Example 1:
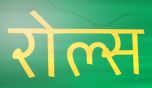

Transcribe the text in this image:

रोल्स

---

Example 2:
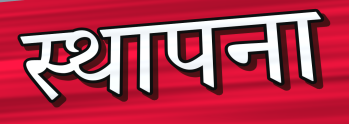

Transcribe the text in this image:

स्‍थापना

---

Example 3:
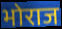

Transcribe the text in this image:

भोराज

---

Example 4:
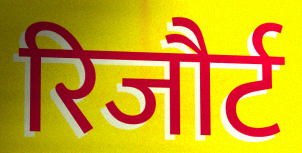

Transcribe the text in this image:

रिजौर्ट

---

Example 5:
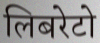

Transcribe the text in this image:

लिबरेटो